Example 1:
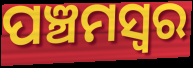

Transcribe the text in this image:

ପଞ୍ଚମସ୍ଵର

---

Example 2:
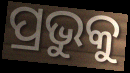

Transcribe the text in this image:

ପ୍ରଭୁକୁ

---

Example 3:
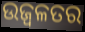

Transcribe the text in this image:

ଉଜ୍ବଳତର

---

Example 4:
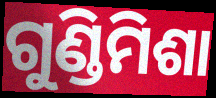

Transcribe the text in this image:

ଗୁଣ୍ଡିମିଶା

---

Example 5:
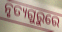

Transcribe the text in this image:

ନୃତ୍ୟଗୁରୁରେ